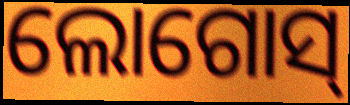
ଲୋଗୋସ୍